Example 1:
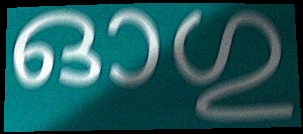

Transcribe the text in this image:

ഓഗു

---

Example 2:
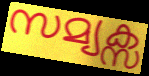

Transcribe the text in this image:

സമ്യക്സ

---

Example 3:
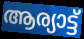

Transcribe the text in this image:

ആര്യാട്ട്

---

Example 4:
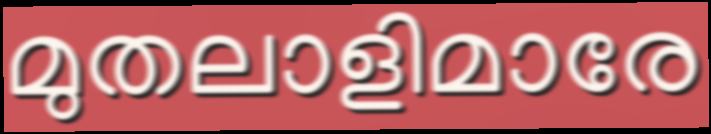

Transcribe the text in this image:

മുതലാളിമാരേ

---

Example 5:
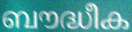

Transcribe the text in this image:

ബൗദ്ധീക